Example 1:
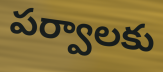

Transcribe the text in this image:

పర్వాలకు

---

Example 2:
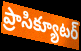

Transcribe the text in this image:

ప్రాసిక్యూటర్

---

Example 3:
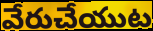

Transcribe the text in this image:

వేరుచేయుట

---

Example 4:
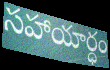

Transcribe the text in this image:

సహాయార్ధం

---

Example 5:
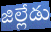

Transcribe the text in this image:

జిల్లేడు